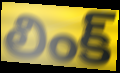
లింక్